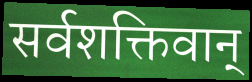
सर्वशक्तिवान्